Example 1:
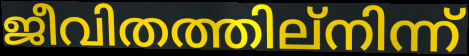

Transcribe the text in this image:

ജീവിതത്തില്നിന്ന്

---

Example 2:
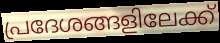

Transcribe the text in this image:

പ്രദേശങ്ങളിലേക്ക്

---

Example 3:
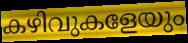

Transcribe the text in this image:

കഴിവുകളേയും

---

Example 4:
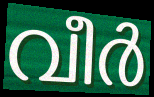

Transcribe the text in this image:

വീർ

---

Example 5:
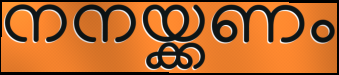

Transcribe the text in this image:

നനയ്ക്കണം